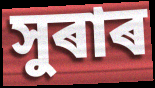
সুৰাৰ